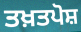
ਤਖ਼ਤਪੋਸ਼